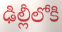
ఢిల్లీలోకి